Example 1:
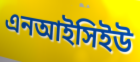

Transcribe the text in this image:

এনআইসিইউ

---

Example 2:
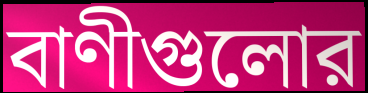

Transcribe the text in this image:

বাণীগুলোর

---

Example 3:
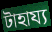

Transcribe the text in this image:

টাহায্য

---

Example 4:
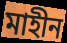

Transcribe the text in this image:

মাহীন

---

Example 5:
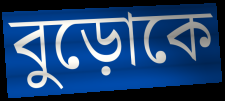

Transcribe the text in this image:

বুড়োকে